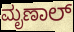
ಮೃಣಾಲ್